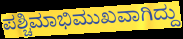
ಪಶ್ಚಿಮಾಭಿಮುಖವಾಗಿದ್ದು